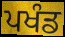
ਪਖੰਡ